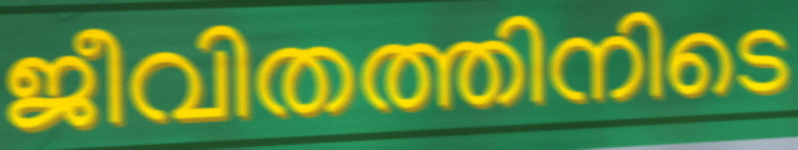
ജീവിതത്തിനിടെ